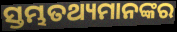
ସ୍ତମ୍ଭତଥ୍ୟମାନଙ୍କର